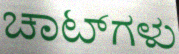
ಚಾಟ್‌ಗಳು